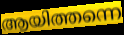
ആയിത്തന്നെ